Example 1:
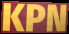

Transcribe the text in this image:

KPN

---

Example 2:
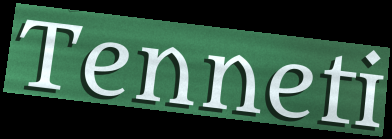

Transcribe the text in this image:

Tenneti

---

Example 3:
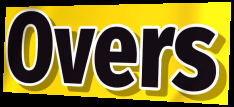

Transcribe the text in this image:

Overs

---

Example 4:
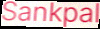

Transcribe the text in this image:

Sankpal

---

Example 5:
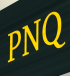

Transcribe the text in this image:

PNQ